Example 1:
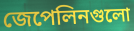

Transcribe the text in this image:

জেপেলিনগুলো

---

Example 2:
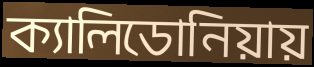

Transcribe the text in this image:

ক্যালিডোনিয়ায়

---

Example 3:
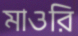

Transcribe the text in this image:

মাওরি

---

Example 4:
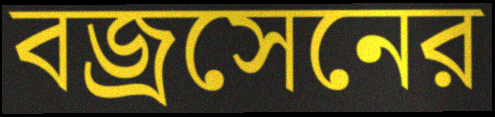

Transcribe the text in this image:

বজ্রসেনের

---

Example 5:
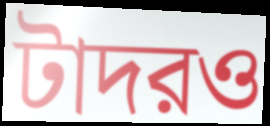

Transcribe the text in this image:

টাদরও